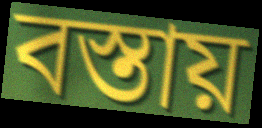
বস্তায়